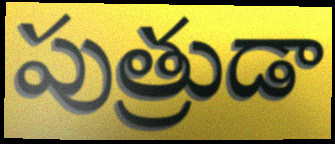
పుత్రుడా